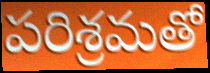
పరిశ్రమతో